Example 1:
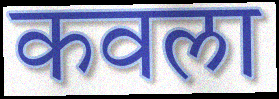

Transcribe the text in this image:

कवला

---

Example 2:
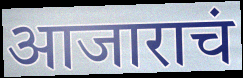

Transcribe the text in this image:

आजाराचं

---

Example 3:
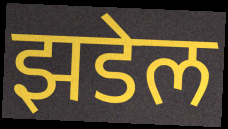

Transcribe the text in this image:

झडेल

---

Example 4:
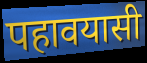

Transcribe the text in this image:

पहावयासी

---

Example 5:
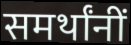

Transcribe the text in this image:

समर्थांनीं